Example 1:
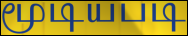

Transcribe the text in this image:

மூடியபடி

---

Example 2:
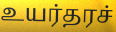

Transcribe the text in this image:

உயர்தரச்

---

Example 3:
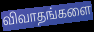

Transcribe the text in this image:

விவாதங்களை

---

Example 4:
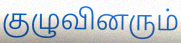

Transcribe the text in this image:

குழுவினரும்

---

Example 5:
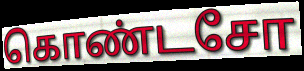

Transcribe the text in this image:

கொண்டசோ